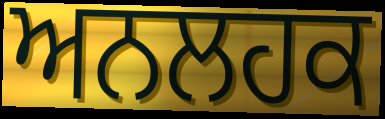
ਅਨਲਹਕ